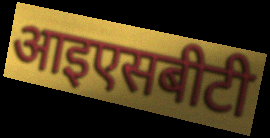
आइएसबीटी